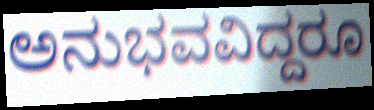
ಅನುಭವವಿದ್ದರೂ